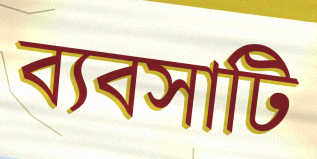
ব্যবসাটি